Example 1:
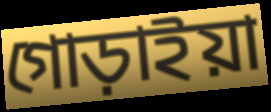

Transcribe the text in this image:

গোড়াইয়া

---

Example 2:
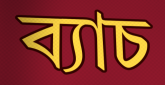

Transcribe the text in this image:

ব্যাচ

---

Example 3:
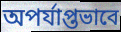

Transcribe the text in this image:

অপর্যাপ্তভাবে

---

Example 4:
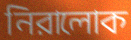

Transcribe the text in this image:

নিরালোক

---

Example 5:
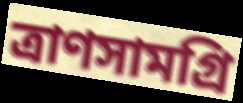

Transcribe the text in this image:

ত্রাণসামগ্রি